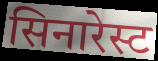
सिनारेस्ट